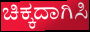
ಚಿಕ್ಕದಾಗಿಸಿ